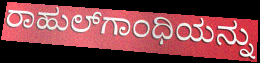
ರಾಹುಲ್‌ಗಾಂಧಿಯನ್ನು